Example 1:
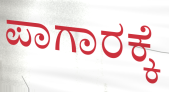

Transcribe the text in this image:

ಪಾಗಾರಕ್ಕೆ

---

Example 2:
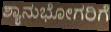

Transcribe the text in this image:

ಶ್ಯಾನುಭೋಗರಿಗೆ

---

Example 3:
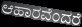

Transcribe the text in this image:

ಆಹಾರವೆಂದರೆ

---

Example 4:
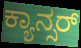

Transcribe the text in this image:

ಕ್ಯಾನ್ಸರ್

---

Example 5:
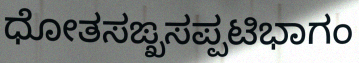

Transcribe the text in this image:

ಧೋತಸಙ್ಖಸಪ್ಪಟಿಭಾಗಂ